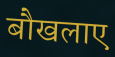
बौखलाए